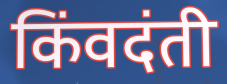
किंवदंती